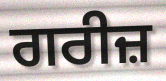
ਗਰੀਜ਼